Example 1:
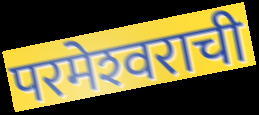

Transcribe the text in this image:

परमेश्‍वराची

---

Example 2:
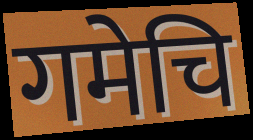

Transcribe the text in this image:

गमेचि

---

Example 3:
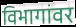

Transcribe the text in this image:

विभागांवर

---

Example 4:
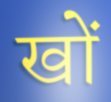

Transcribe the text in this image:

खों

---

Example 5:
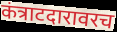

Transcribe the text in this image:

कंत्राटदारावरच